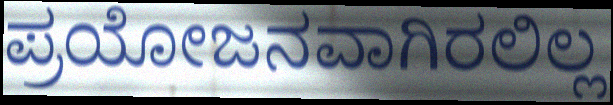
ಪ್ರಯೋಜನವಾಗಿರಲಿಲ್ಲ